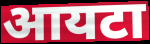
आयटा